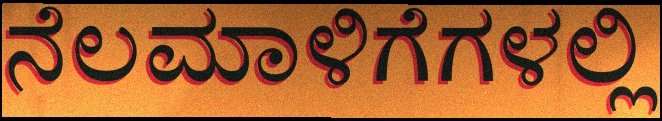
ನೆಲಮಾಳಿಗೆಗಳಲ್ಲಿ